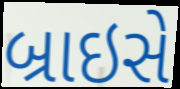
બ્રાઇસે